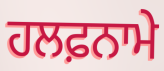
ਹਲਫ਼ਨਾਮੇ